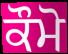
ਕੌਮੋ